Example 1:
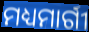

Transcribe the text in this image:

ମଧ୍ୟମାର୍ଗୀ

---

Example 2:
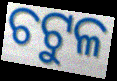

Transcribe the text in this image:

ଚଟୁଳ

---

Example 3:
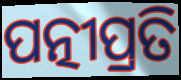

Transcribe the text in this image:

ପତ୍ନୀପ୍ରତି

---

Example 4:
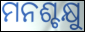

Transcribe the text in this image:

ମନଶ୍ଚକ୍ଷୁ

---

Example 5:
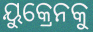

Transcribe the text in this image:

ୟୁକ୍ରେନକୁ